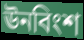
ঊনবিংশ